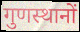
गुणस्थानों